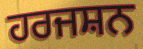
ਹਰਜਸ਼ਨ